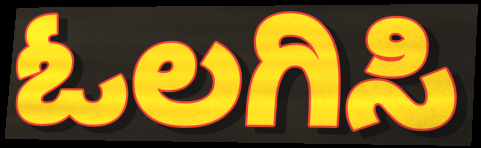
ಓಲಗಿಸಿ